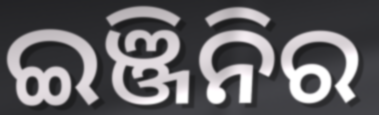
ଇଞ୍ଜିନିର